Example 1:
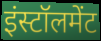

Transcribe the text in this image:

इंस्टॉलमेंट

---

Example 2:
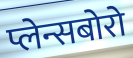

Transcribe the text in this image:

प्लेन्सबोरो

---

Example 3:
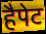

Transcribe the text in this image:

हैपेट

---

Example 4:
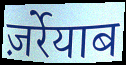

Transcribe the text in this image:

ज़र्रेयाब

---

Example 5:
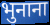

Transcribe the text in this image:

भुनाना